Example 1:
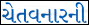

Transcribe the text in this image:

ચેતવનારની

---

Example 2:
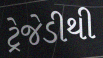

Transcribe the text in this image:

ટ્રેજેડીથી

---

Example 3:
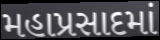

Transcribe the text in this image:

મહાપ્રસાદમાં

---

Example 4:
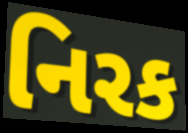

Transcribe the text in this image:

નિરક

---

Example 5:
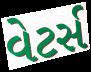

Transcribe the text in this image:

વેટર્સ